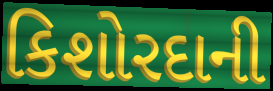
કિશોરદાની